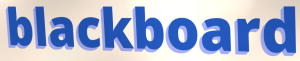
blackboard